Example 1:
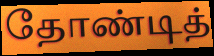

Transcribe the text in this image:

தோண்டித்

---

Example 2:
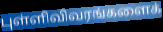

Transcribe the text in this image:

புள்ளிவிவரங்களைக்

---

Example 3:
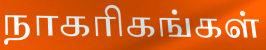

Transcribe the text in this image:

நாகரிகங்கள்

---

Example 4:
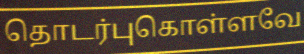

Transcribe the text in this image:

தொடர்புகொள்ளவே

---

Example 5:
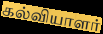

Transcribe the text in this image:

கல்வியாளர்